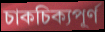
চাকচিক্যপূর্ণ